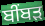
ਬੀਂਬੜ